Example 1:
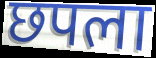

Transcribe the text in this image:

छपला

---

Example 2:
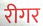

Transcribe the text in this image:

रीगर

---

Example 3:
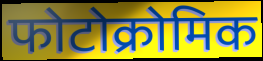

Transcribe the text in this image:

फोटोक्रोमिक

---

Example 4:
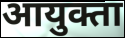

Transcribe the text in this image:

आयुक्ता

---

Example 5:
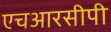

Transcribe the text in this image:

एचआरसीपी